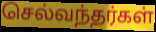
செல்வந்தர்கள்